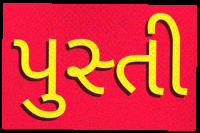
પુસ્તી